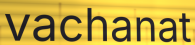
vachanat